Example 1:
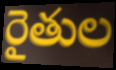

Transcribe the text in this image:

రైతుల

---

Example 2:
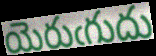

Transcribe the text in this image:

యెరుఁగుదు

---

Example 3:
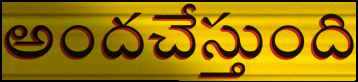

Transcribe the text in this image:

అందచేస్తుంది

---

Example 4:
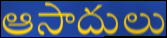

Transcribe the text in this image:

ఆసాదులు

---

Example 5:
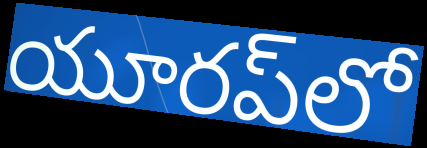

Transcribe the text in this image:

యూరప్‌లో